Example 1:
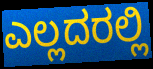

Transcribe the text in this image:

ಎಲ್ಲದರಲ್ಲಿ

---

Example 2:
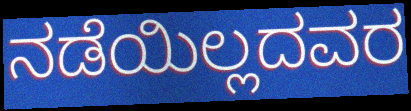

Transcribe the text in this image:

ನಡೆಯಿಲ್ಲದವರ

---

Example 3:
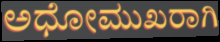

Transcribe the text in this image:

ಅಧೋಮುಖರಾಗಿ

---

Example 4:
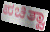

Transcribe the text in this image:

ಪಚಿತ್ವಾ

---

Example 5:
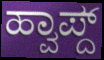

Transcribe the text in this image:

ಹ್ವಾಪ್ದ್